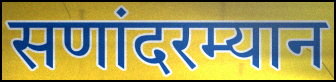
सणांदरम्यान